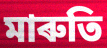
মাৰুতি